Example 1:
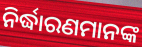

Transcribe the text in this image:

ନିର୍ଦ୍ଧାରଣମାନଙ୍କ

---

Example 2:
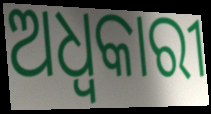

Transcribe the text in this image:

ଅଧ୍ବକାରୀ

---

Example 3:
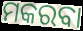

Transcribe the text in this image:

ମକରବା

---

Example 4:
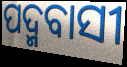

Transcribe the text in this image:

ପଦ୍ମବାସୀ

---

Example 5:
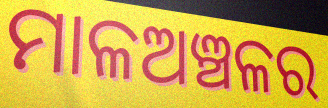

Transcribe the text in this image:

ମାଳଅଞ୍ଚଳର